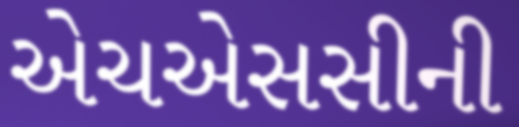
એચએસસીની